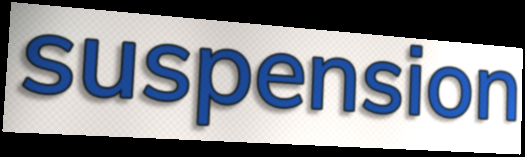
suspension